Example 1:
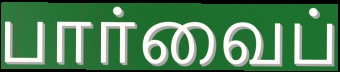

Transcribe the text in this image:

பார்வைப்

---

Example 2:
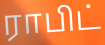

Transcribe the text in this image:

ராபிட்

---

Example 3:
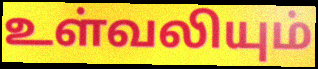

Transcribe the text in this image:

உள்வலியும்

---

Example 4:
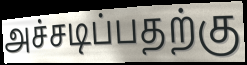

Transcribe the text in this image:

அச்சடிப்பதற்கு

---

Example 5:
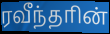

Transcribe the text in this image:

ரவீந்தரின்